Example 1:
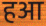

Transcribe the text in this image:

हआ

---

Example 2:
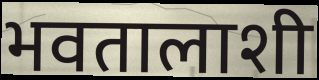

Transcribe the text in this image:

भवतालाशी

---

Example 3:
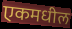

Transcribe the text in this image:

एकमधील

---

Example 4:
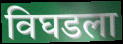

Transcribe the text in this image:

विघडला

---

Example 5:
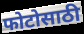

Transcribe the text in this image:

फोटोसाठी